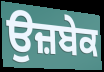
ਉਜ਼ਬੇਕ